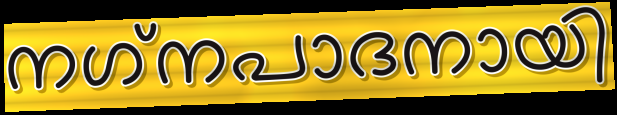
നഗ്‌നപാദനായി